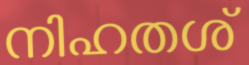
നിഹതശ്